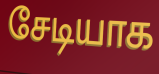
சேடியாக